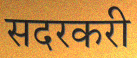
सदरकरी